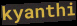
kyanthi